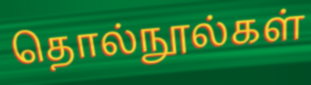
தொல்நூல்கள்